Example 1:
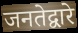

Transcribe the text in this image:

जनतेद्वारे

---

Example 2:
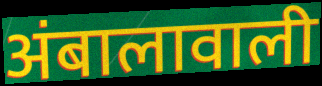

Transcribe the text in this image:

अंबालावाली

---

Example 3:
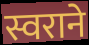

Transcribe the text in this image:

स्वराने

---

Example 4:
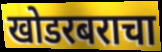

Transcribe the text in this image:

खोडरबराचा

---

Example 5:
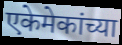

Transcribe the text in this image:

एकेमेकांच्या